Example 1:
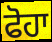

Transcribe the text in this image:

ਫੋਹਾ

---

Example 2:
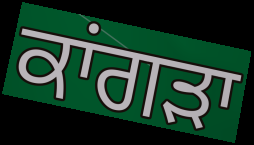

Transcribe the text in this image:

ਕਾਂਗੜਾ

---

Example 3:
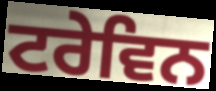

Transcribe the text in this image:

ਟਰੇਵਿਨ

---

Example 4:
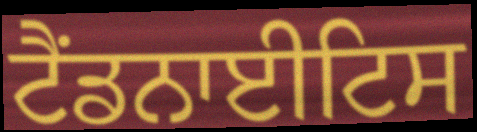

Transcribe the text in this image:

ਟੈਂਡਨਾਈਟਿਸ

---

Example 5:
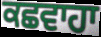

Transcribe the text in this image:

ਕਛਵਾਹਾ